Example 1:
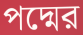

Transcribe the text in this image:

পদ্মের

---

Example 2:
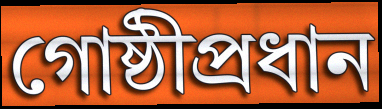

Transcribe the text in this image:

গোষ্ঠীপ্রধান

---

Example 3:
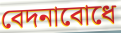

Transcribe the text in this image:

বেদনাবোধে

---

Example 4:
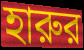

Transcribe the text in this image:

হারুর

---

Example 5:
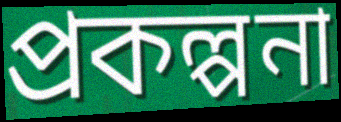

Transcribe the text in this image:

প্রকল্পনা